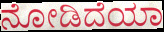
ನೋಡಿದೆಯಾ